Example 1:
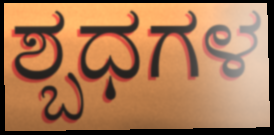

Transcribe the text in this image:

ಶ್ಬಧಗಳ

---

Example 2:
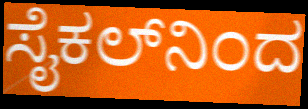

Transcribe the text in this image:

ಸೈಕಲ್‌ನಿಂದ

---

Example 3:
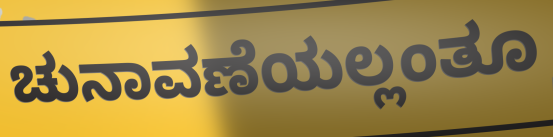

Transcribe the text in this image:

ಚುನಾವಣೆಯಲ್ಲಂತೂ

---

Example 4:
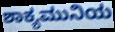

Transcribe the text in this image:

ಶಾಕ್ಯಮುನಿಯ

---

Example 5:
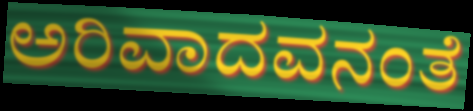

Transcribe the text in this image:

ಅರಿವಾದವನಂತೆ